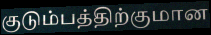
குடும்பத்திற்குமான